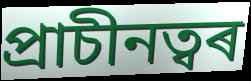
প্ৰাচীনত্বৰ